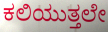
ಕಲಿಯುತ್ತಲೇ